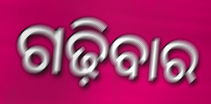
ଗଢ଼ିବାର